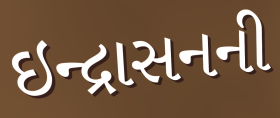
ઇન્દ્રાસનની